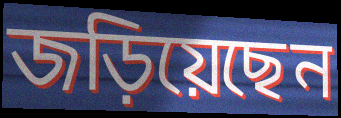
জড়িয়েছেন